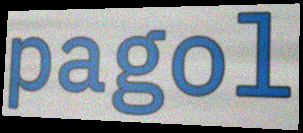
pagol